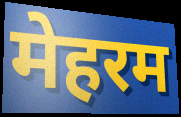
मेहरम